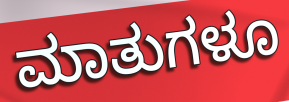
ಮಾತುಗಳೂ